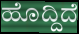
ಹೊದ್ದಿದೆ